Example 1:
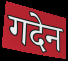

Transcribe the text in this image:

गदेन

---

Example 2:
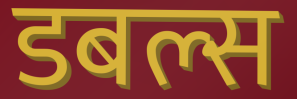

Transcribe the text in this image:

डबल्‍स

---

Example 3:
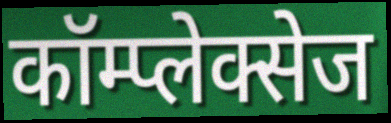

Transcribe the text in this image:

कॉम्प्लेक्सेज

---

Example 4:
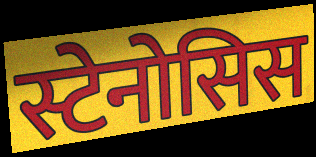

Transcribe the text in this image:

स्टेनोसिस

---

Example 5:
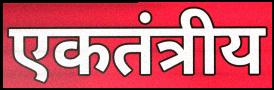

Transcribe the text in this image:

एकतंत्रीय